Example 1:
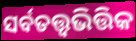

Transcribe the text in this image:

ସର୍ବତତ୍ତ୍ୱଭିତ୍ତିକ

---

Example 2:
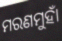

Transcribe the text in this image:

ମରଣମୁହାଁ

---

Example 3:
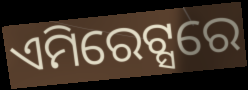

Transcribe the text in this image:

ଏମିରେଟ୍ସରେ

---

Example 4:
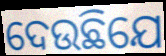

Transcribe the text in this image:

ଦେଉଛିଯେ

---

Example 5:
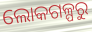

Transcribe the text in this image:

ଲୋକଗଳ୍ପରୁ